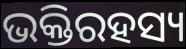
ଭକ୍ତିରହସ୍ୟ